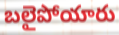
బలైపోయారు